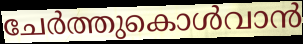
ചേർത്തുകൊൾവാൻ